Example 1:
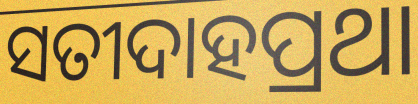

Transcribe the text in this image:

ସତୀଦାହପ୍ରଥା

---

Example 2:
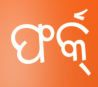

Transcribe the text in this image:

ଫର୍କ୍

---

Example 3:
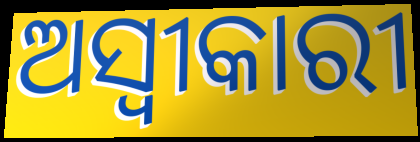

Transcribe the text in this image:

ଅସ୍ଵୀକାରୀ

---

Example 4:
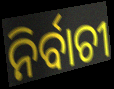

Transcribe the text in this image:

ନିର୍ବାଚୀ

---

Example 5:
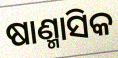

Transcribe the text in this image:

ଷାଣ୍ମାସିକ